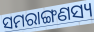
ସମରାଙ୍ଗଣସ୍ୟ